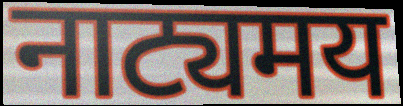
नाट्यमय